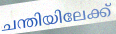
ചന്തിയിലേക്ക്